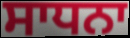
ਸਾਧਨਾ